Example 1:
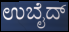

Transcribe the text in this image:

ಉಬೈದ್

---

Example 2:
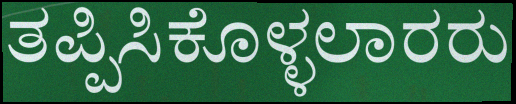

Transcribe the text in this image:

ತಪ್ಪಿಸಿಕೊಳ್ಳಲಾರರು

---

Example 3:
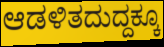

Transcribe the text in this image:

ಆಡಳಿತದುದ್ದಕ್ಕೂ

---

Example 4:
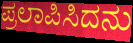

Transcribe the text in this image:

ಪ್ರಲಾಪಿಸಿದನು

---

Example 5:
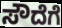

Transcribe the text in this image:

ಸೌದೆಗೆ